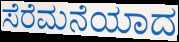
ಸೆರೆಮನೆಯಾದ